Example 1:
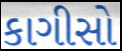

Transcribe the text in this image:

કાગીસો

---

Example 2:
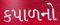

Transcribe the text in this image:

કપાળનો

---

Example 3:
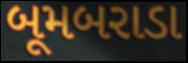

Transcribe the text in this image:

બૂમબરાડા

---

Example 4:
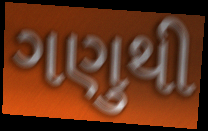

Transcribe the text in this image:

ગણુથી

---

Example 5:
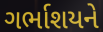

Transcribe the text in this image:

ગર્ભાશયને